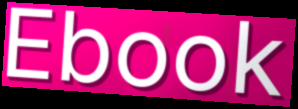
Ebook